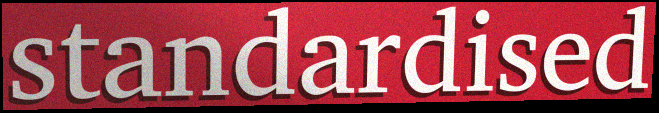
standardised